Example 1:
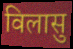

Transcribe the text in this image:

विलासु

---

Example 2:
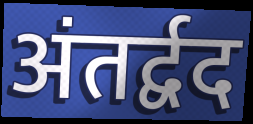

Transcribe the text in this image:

अंतर्द्वद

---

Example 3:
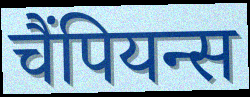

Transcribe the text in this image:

चैंपियन्स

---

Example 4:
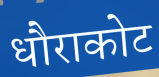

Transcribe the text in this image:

धौराकोट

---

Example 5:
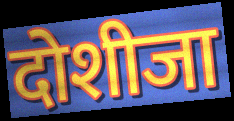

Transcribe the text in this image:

दोशीजा